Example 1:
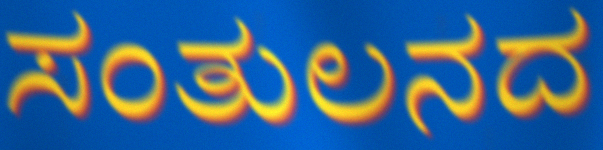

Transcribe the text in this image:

ಸಂತುಲನದ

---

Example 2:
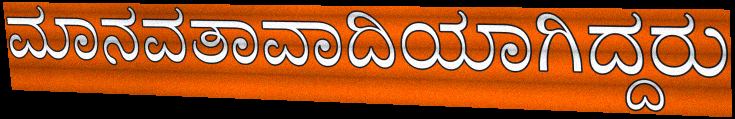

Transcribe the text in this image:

ಮಾನವತಾವಾದಿಯಾಗಿದ್ದರು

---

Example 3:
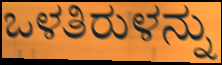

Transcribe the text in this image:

ಒಳತಿರುಳನ್ನು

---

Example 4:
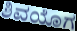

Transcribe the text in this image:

ಶಿವಯೊಗ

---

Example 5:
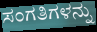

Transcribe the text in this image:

ಸಂಗತಿಗಳನ್ನು